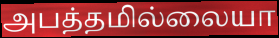
அபத்தமில்லையா